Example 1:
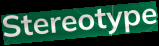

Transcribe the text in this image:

Stereotype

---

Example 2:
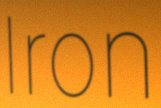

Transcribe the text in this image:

Iron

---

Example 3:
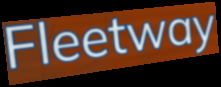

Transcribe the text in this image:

Fleetway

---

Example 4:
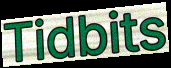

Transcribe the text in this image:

Tidbits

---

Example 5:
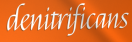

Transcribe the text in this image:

denitrificans